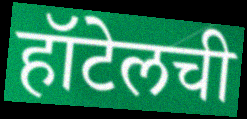
हॉटेलची